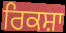
ਰਿਕਸ਼ਾ